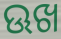
ଊଖ